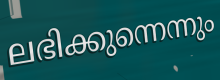
ലഭിക്കുന്നെന്നും